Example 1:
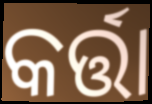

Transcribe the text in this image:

କର୍ତ୍ତା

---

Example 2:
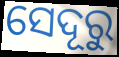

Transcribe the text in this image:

ସେଦୂରୁ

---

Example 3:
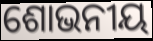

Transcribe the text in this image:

ଶୋଭନୀୟ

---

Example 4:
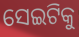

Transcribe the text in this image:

ସେଇଟିକୁ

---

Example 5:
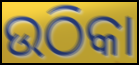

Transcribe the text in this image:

ଉଠିକା